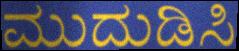
ಮುದುಡಿಸಿ